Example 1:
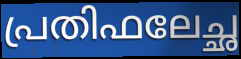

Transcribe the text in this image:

പ്രതിഫലേച്ഛ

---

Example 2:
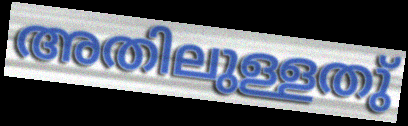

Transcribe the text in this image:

അതിലുള്ളതു്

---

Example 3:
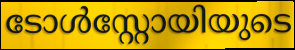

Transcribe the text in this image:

ടോൾസ്റ്റോയിയുടെ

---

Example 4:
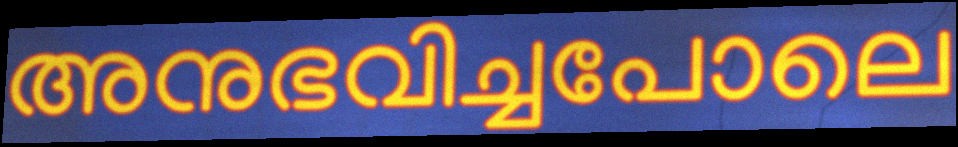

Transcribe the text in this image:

അനുഭവിച്ചപോലെ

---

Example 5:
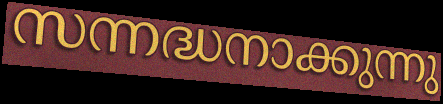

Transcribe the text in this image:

സന്നദ്ധനാക്കുന്നു